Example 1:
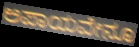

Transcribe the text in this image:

ಅಪಾಯವೇನೂ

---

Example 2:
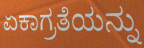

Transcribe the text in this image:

ಏಕಾಗ್ರತೆಯನ್ನು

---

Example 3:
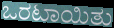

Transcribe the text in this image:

ಒರಟಾಯಿತು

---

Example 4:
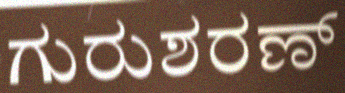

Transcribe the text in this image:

ಗುರುಶರಣ್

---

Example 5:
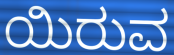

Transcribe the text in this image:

ಯಿರುವ